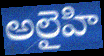
అలైహి